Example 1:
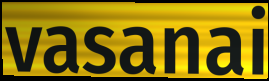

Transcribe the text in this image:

vasanai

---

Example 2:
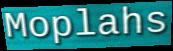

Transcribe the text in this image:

Moplahs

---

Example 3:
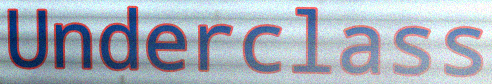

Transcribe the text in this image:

Underclass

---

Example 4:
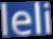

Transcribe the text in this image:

leli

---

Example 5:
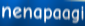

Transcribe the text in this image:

nenapaagi